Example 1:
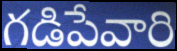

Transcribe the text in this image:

గడిపేవారి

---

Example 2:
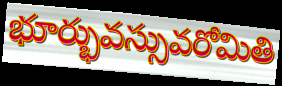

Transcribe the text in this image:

భూర్భువస్సువరోమితి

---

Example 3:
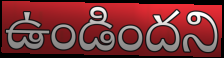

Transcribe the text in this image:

ఉండిందని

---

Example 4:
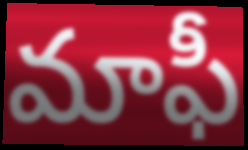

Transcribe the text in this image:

మాఫీ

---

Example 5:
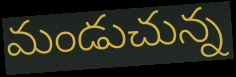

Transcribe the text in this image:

మండుచున్న